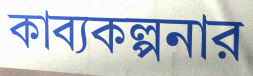
কাব্যকল্পনার